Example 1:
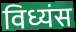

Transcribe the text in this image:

विध्यंस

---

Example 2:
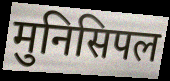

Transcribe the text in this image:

मुनिसिपल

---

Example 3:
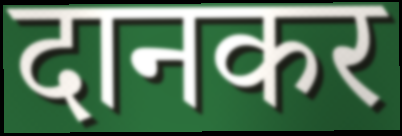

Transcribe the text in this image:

दानकर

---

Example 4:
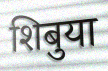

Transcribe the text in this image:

शिबुया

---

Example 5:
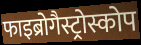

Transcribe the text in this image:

फाइब्रोगैस्ट्रोस्कोप